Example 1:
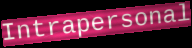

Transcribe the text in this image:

Intrapersonal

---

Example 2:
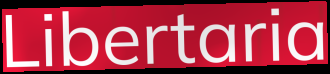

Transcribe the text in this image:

Libertaria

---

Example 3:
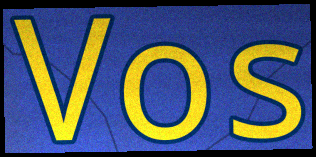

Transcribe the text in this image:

Vos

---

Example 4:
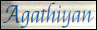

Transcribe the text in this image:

Agathiyan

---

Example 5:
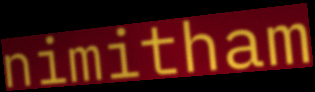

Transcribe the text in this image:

nimitham